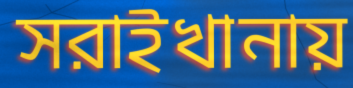
সরাইখানায়